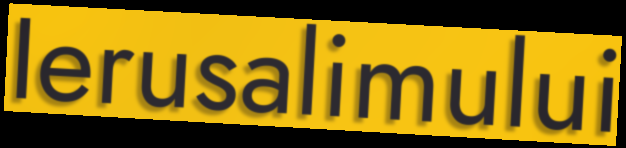
Ierusalimului